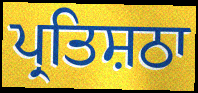
ਪ੍ਰਤਿਸ਼ਠਾ